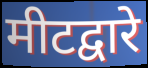
मीटद्वारे